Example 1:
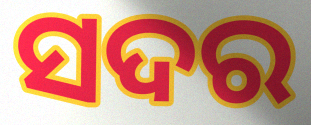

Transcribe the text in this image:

ସଦର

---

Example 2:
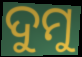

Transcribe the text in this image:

ଦୁମୁ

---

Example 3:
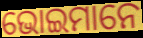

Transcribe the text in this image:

ଭୋଇମାନେ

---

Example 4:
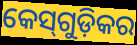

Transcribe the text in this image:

କେସ୍‌ଗୁଡ଼ିକର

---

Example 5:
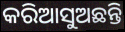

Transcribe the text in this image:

କରିଆସୁଅଛନ୍ତି